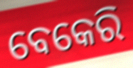
ବେକେରି